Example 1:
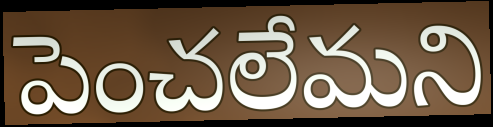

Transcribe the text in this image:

పెంచలేమని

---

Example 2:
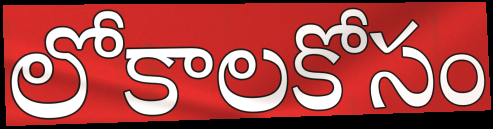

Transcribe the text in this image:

లోకాలకోసం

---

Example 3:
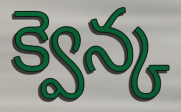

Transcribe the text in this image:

క్వెన్క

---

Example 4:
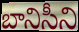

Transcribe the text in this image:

బానిసీని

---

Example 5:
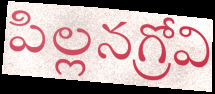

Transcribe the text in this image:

పిల్లనగ్రోవి